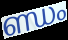
ണ്ഡം